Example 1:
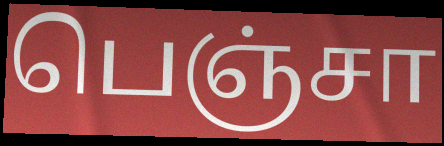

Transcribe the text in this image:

பெஞ்சா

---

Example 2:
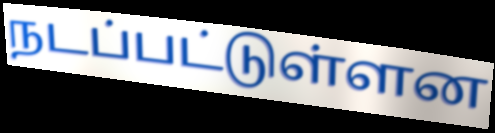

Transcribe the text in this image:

நடப்பட்டுள்ளன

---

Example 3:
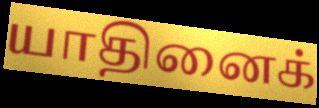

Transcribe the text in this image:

யாதினைக்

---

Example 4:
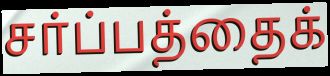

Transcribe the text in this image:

சர்ப்பத்தைக்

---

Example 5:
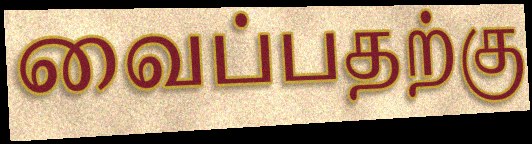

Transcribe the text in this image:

வைப்பதற்கு